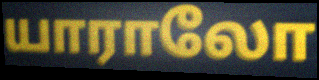
யாராலோ